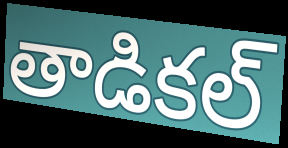
తాడికల్